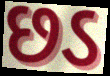
છડ